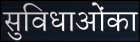
सुविधाओंका